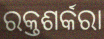
ରକ୍ତଶର୍କରା